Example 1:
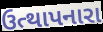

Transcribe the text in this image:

ઉત્થાપનારા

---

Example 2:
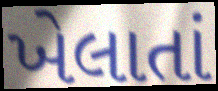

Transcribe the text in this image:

ખેલાતાં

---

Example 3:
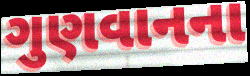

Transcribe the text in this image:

ગુણવાનના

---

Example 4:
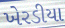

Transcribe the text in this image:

ખેરડીયા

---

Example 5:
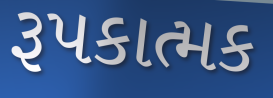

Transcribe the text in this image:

રૂપકાત્મક